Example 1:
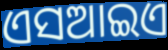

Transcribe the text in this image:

ଏସଆଇଏ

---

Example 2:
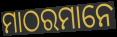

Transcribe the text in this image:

ମାଠରମାନେ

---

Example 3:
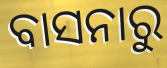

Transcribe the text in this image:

ବାସନାରୁ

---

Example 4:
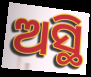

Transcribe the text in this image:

ଅସ୍ଥି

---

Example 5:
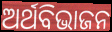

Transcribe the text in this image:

ଅର୍ଥବିଭାଜନ